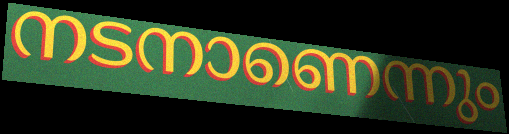
നടനാണെന്നും